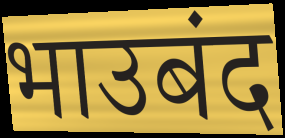
भाउबंद